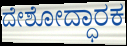
ದೇಶೋದ್ಧಾರಕ